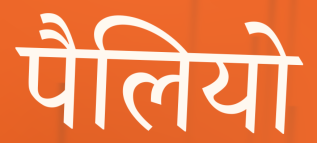
पैलियो